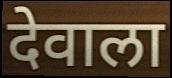
देवाला